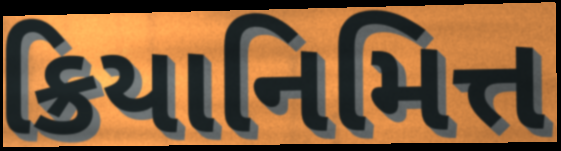
ક્રિયાનિમિત્ત